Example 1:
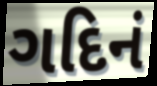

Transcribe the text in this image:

ગદિનં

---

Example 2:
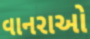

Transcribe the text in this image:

વાનરાઓ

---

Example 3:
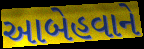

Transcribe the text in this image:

આબેહવાને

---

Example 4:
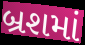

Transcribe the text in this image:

બ્રશમાં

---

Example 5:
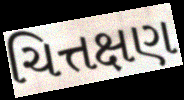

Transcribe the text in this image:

ચિત્તક્ષણ